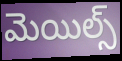
మెయిల్స్